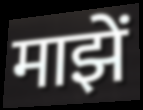
माझें